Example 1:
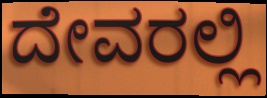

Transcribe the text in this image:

ದೇವರಲ್ಲಿ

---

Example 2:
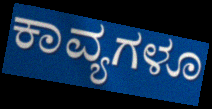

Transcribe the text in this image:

ಕಾವ್ಯಗಳೂ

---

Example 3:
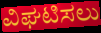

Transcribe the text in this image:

ವಿಘಟಿಸಲು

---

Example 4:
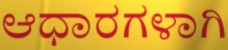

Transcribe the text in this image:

ಆಧಾರಗಳಾಗಿ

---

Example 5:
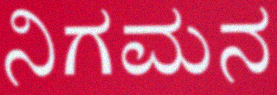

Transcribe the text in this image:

ನಿಗಮನ